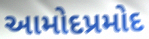
આમોદપ્રમોદ